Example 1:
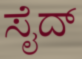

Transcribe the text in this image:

ಸೈದ್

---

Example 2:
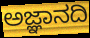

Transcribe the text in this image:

ಅಜ್ಞಾನದಿ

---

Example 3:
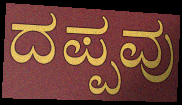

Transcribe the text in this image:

ದಪ್ಪವು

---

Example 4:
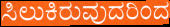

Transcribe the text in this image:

ಸಿಲುಕಿರುವುದರಿಂದ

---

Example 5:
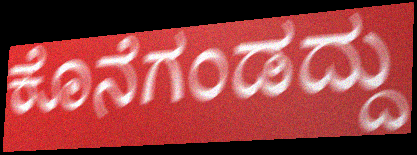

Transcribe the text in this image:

ಕೊನೆಗಂಡದ್ದು